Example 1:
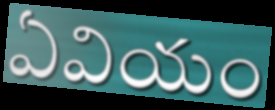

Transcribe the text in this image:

ఏవియం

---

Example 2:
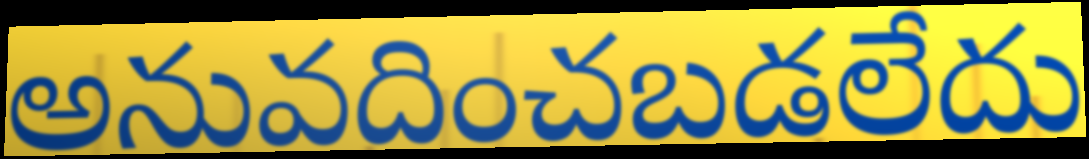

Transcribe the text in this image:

అనువదించబడలేదు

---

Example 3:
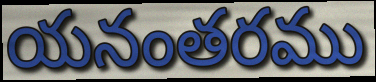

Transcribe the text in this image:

యనంతరము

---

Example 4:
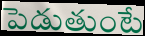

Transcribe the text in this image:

పెడుతుంటే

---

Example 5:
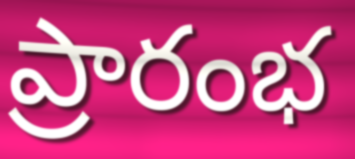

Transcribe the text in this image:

ప్రారంభ